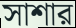
সাশার